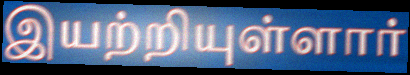
இயற்றியுள்ளார்